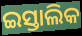
ଇସ୍ତାଲିକ